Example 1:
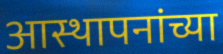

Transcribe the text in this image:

आस्थापनांच्या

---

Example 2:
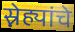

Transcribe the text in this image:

स्नेह्यांचे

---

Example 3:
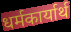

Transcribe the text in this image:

धर्मकार्यार्थ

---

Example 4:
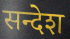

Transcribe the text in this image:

सन्देश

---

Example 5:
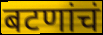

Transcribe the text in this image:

बटणांचं